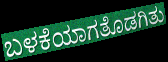
ಬಳಕೆಯಾಗತೊಡಗಿತು